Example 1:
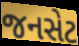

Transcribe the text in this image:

જનસેટ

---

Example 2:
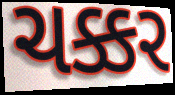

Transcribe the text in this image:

ચક્કર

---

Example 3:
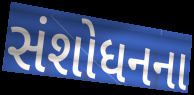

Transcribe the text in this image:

સંશોધનના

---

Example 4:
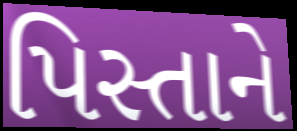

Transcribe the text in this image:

પિસ્તાને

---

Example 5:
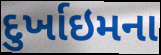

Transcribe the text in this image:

દુર્ખાઇમના